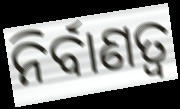
ନିର୍ବାଣତ୍ୱ